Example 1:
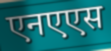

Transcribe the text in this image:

एनएएस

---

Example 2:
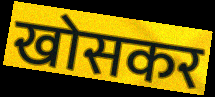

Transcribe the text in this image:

खोसकर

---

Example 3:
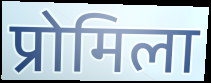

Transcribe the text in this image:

प्रोमिला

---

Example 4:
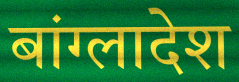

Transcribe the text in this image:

बांग्‍लादेश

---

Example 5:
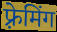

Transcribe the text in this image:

फ़्रेमिंग